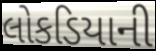
લોકડિયાની